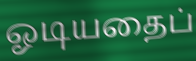
ஓடியதைப்